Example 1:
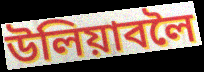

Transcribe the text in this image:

উলিয়াবলৈ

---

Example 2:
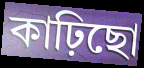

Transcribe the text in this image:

কাঢ়িছো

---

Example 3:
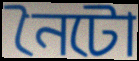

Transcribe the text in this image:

নৈটো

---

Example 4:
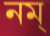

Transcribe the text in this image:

নম্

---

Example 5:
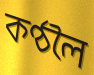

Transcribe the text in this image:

কণ্ঠলৈ